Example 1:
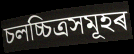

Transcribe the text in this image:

চলচ্চিত্ৰসমূহৰ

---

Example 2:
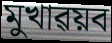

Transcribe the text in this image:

মুখাৱয়ব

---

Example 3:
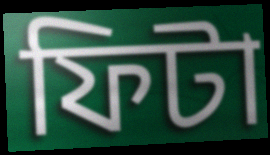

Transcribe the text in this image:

ফিটা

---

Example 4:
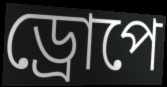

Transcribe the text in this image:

ড্ৰোপে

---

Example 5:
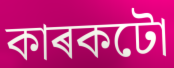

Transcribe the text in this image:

কাৰকটো